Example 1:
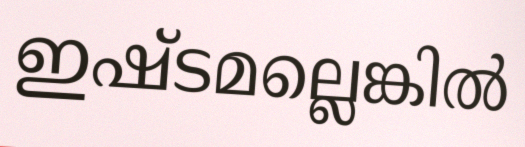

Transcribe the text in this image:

ഇഷ്ടമല്ലെങ്കിൽ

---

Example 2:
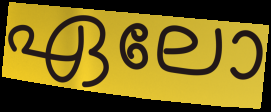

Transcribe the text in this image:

ഏലോ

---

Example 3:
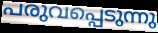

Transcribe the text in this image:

പരുവപ്പെടുന്നു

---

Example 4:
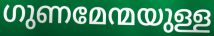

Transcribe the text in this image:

ഗുണമേന്മയുള്ള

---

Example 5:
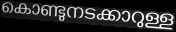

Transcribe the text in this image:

കൊണ്ടുനടക്കാറുള്ള